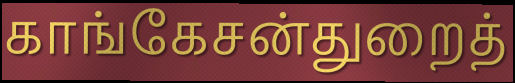
காங்கேசன்துறைத்